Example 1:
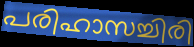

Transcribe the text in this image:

പരിഹാസച്ചിരി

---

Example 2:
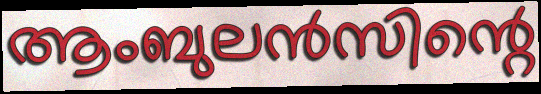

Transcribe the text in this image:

ആംബുലൻസിന്റെ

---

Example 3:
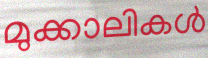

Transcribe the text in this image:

മുക്കാലികൾ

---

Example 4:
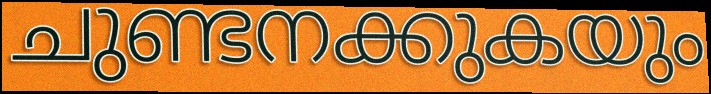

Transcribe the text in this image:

ചുണ്ടനക്കുകയും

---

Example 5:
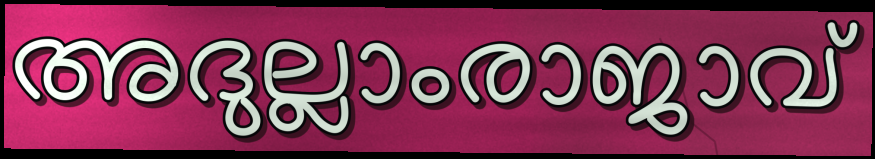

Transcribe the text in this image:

അദുല്ലാംരാജാവ്